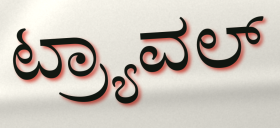
ಟ್ರ್ಯಾವಲ್